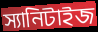
স্যানিটাইজ